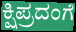
ಕ್ಷಿಪ್ರದಂಗೆ